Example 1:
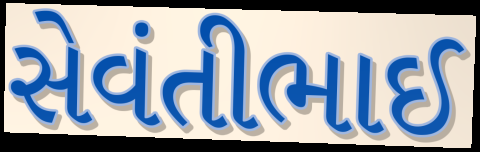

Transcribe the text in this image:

સેવંતીભાઈ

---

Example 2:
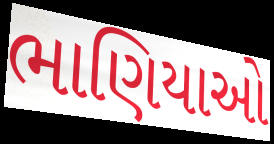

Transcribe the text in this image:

ભાણિયાઓ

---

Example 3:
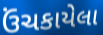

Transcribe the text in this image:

ઉંચકાયેલા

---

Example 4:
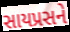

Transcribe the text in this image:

સાયપ્રસને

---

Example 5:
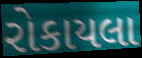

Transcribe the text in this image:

રોકાયલા